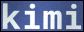
kimi